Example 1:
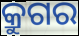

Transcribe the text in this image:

କ୍ରୁଗର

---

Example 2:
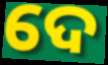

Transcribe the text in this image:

ଦେ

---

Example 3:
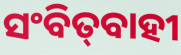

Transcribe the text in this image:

ସଂବିତ୍‌ବାହୀ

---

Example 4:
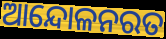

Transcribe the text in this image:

ଆନ୍ଦୋଳନରତ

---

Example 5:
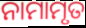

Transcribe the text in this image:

ନାମାମୃତ